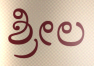
ಶ್ರೀಲ